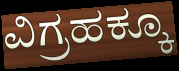
ವಿಗ್ರಹಕ್ಕೂ